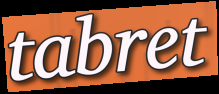
tabret